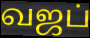
வஜப்